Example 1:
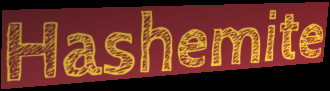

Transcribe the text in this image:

Hashemite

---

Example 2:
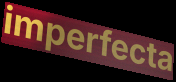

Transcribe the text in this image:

imperfecta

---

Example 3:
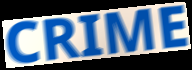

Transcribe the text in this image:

CRIME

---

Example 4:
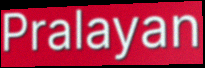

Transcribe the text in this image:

Pralayan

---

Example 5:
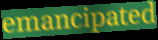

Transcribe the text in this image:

emancipated